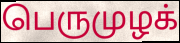
பெருமுழக்